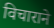
विचाराने